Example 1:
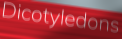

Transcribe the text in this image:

Dicotyledons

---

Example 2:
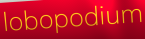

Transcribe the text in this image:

lobopodium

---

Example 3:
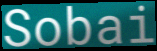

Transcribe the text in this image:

Sobai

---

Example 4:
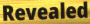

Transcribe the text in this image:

Revealed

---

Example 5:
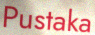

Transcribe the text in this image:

Pustaka